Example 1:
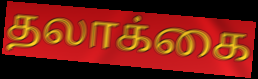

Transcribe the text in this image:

தலாக்கை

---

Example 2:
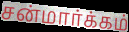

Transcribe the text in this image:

சன்மார்க்கம்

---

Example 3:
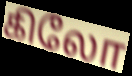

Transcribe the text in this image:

கிலோ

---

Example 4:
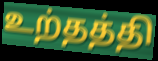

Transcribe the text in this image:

உற்தத்தி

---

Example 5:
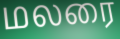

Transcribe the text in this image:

மலரை